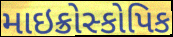
માઇક્રોસ્કોપિક